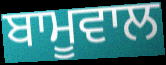
ਬਾਮੂਵਾਲ